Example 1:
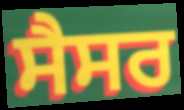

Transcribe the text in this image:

ਸੈਸਰ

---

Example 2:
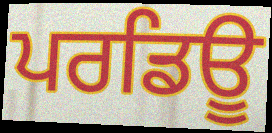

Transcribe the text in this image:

ਪਰਡਿਊ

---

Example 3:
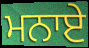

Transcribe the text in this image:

ਮਨਾਏ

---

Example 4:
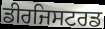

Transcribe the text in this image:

ਡੀਰਜਿਸਟਰਡ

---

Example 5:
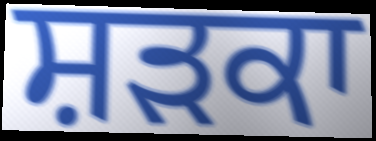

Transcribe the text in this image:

ਸ਼ੜਕਾ